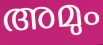
അമും